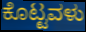
ಕೊಟ್ಟವಳು